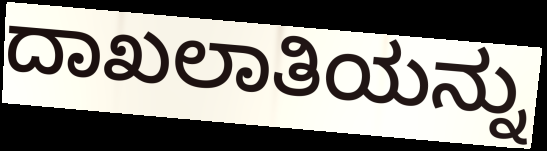
ದಾಖಲಾತಿಯನ್ನು